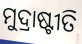
ମୁଦ୍ରାଷ୍ଟୀତି